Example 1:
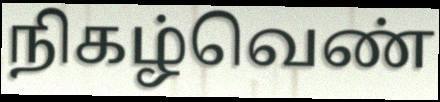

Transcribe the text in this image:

நிகழ்வெண்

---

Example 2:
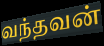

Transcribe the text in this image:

வந்தவன்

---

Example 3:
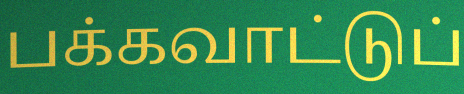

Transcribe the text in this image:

பக்கவாட்டுப்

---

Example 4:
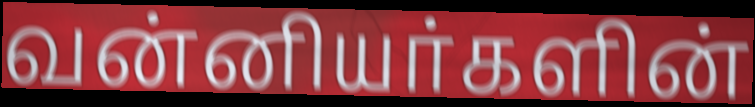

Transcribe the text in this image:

வன்னியர்களின்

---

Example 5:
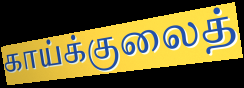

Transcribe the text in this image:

காய்க்குலைத்